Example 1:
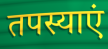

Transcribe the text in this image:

तपस्याएं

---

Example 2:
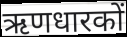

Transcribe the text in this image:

ऋणधारकों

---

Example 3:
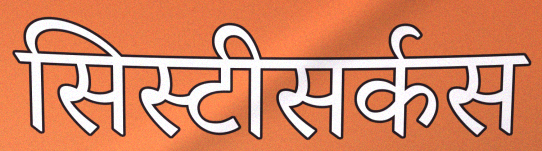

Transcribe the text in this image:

सिस्टीसर्कस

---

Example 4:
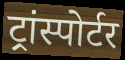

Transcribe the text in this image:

ट्रांस्पोर्टर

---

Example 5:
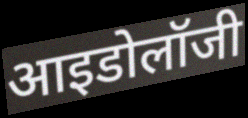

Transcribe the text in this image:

आइडोलॉजी